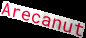
Arecanut